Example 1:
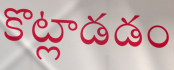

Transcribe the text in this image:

కొట్లాడడం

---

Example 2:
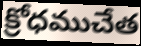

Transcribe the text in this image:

క్రోధముచేత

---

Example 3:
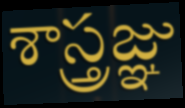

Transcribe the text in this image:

శాస్త్రజ్ఞు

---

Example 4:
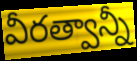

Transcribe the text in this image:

వీరత్వాన్నీ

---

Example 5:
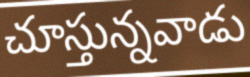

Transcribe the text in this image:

చూస్తున్నవాడు